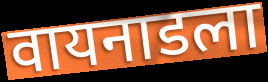
वायनाडला